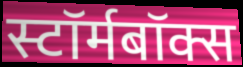
स्टॉर्मबॉक्स